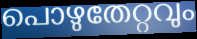
പൊഴുതേറ്റവും